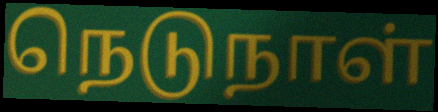
நெடுநாள்